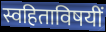
स्वहिताविषयीं